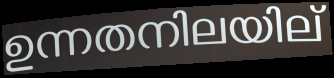
ഉന്നതനിലയില്